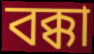
বক্কা